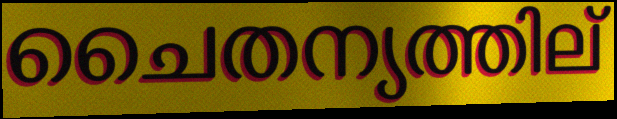
ചൈതന്യത്തില്